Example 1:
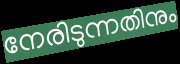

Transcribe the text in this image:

നേരിടുന്നതിനും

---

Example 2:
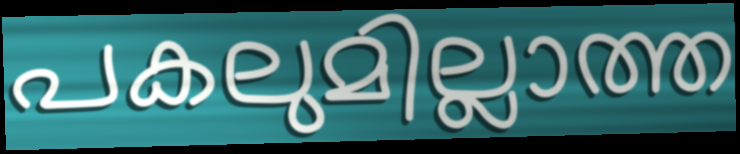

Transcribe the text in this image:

പകലുമില്ലാത്ത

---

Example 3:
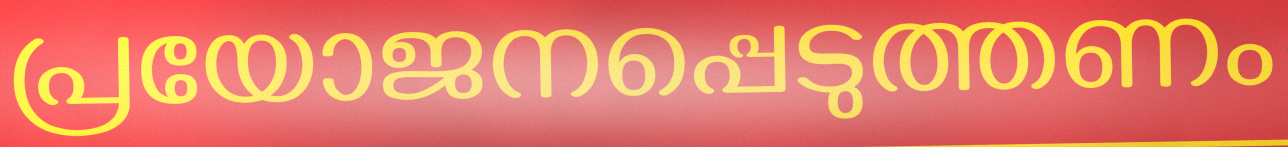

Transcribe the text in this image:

പ്രയോജനപ്പെടുത്തണം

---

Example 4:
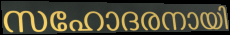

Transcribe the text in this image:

സഹോദരനായി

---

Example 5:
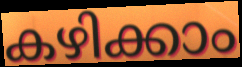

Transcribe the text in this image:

കഴിക്കാം